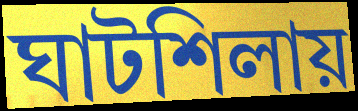
ঘাটশিলায়